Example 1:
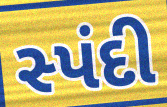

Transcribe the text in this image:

સ્પંદી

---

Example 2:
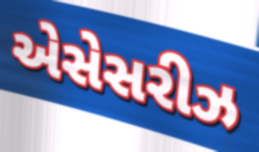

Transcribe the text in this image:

એસેસરીઝ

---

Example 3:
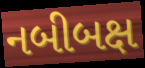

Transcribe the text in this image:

નબીબક્ષ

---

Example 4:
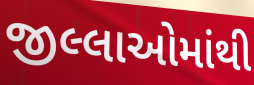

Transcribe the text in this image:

જીલ્લાઓમાંથી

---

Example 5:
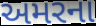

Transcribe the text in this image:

અમરના